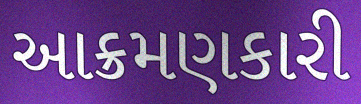
આક્રમણકારી